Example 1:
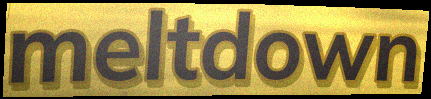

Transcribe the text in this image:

meltdown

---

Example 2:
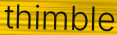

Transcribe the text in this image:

thimble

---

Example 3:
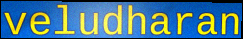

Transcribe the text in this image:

veludharan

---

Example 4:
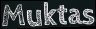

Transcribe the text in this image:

Muktas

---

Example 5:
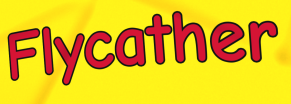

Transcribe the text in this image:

Flycather